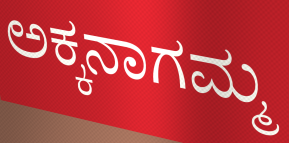
ಅಕ್ಕನಾಗಮ್ಮ